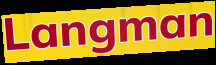
Langman